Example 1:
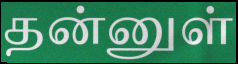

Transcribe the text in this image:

தன்னுள்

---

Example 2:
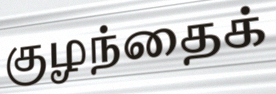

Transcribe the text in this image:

குழந்தைக்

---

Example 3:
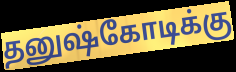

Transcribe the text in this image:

தனுஷ்கோடிக்கு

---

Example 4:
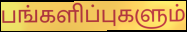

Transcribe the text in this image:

பங்களிப்புகளும்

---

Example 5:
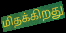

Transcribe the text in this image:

மிதக்கிறது